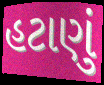
હટાણું